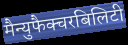
मैन्युफैक्चरबिलिटी